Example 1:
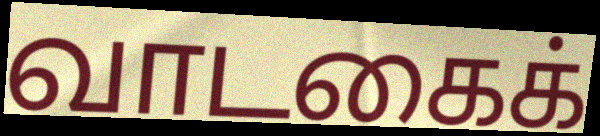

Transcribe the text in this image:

வாடகைக்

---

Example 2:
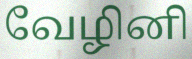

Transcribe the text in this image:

வேழினி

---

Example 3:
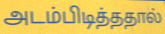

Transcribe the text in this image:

அடம்பிடித்ததால்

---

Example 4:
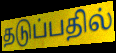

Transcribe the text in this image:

தடுப்பதில்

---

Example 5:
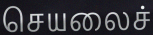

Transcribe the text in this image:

செயலைச்